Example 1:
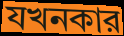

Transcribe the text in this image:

যখনকার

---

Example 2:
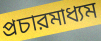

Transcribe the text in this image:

প্রচারমাধ্যম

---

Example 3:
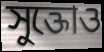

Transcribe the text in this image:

সুক্তোও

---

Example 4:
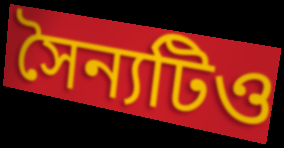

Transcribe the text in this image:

সৈন্যটিও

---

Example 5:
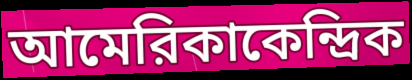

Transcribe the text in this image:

আমেরিকাকেন্দ্রিক